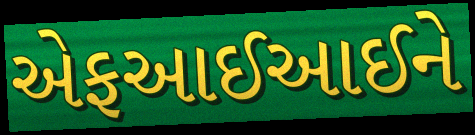
એફઆઈઆઈને